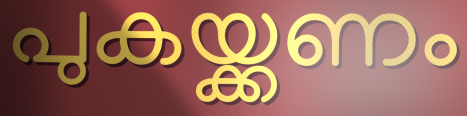
പുകയ്ക്കണം